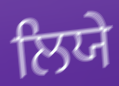
ਲਿਯੇ